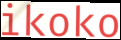
ikoko